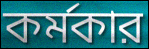
কর্মকার